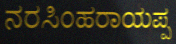
ನರಸಿಂಹರಾಯಪ್ಪ